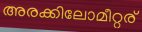
അരക്കിലോമീറ്റര്